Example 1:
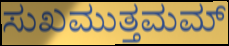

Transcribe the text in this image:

ಸುಖಮುತ್ತಮಮ್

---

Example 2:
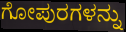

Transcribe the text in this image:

ಗೋಪುರಗಳನ್ನು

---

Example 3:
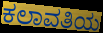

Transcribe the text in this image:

ಕಲಾವತಿಯ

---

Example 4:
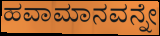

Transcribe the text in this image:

ಹವಾಮಾನವನ್ನೇ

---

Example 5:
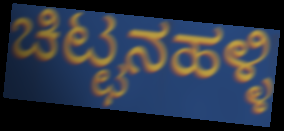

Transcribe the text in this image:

ಚಿಟ್ಟನಹಳ್ಳಿ